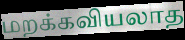
மறக்கவியலாத